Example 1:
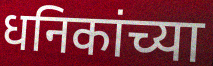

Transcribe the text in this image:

धनिकांच्या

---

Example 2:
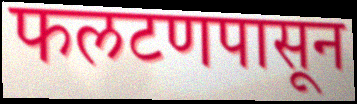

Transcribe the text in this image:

फलटणपासून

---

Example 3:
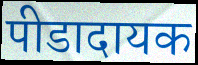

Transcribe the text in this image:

पीडादायक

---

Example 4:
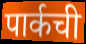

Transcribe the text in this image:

पार्कची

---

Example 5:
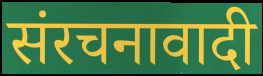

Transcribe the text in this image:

संरचनावादी